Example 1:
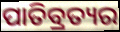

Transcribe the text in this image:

ପାତିବ୍ରତ୍ୟର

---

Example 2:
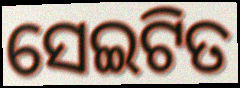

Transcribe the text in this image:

ସେଇଟିତ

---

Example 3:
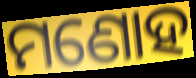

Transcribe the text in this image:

ମଣୋହ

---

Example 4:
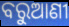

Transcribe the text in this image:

ବରୁଆଣୀ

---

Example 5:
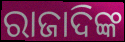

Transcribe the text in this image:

ରାଜାଦିଙ୍କ